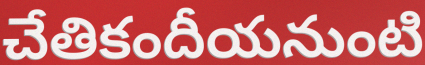
చేతికందీయనుంటి